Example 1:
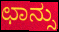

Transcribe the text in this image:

ಛಾನ್ಸು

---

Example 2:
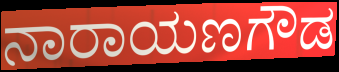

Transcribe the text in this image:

ನಾರಾಯಣಗೌಡ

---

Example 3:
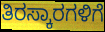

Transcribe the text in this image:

ತಿರಸ್ಕಾರಗಳಿಗೆ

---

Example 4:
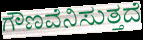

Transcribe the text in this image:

ಗೌಣವೆನಿಸುತ್ತದೆ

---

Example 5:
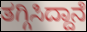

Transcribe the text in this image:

ತಗ್ಗಿಸಿದ್ದಾನೆ